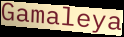
Gamaleya